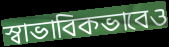
স্বাভাবিকভাবেও